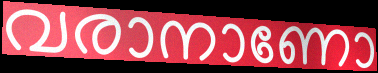
വരാനാണോ